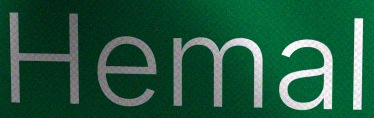
Hemal